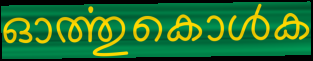
ഓൎത്തുകൊൾക